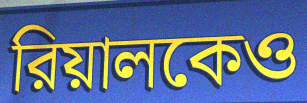
রিয়ালকেও